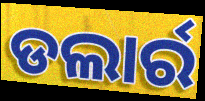
ଡଲାର୍ର